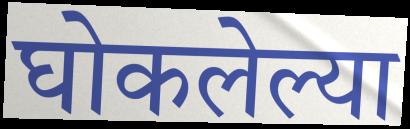
घोकलेल्या